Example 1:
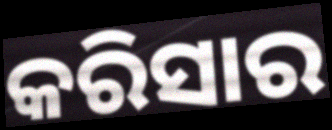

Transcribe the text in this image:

କରିସାର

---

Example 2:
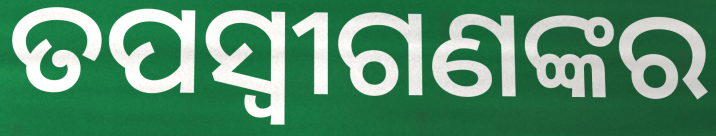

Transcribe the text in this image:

ତପସ୍ୱୀଗଣଙ୍କର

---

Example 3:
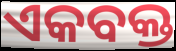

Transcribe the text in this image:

ଏକବକ୍ତ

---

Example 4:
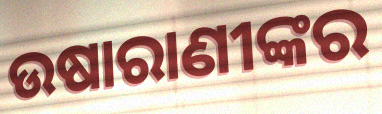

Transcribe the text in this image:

ଉଷାରାଣୀଙ୍କର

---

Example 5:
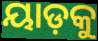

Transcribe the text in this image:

ୟାଡ଼କୁ